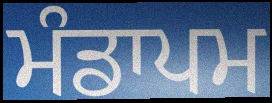
ਮੰਡਾਪਮ